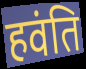
हवंति